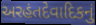
અરહંતદેવાદિકનું